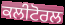
ਕਲੀਟੋਰਲ